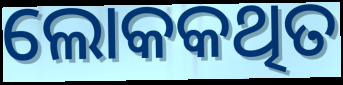
ଲୋକକଥିତ